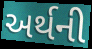
અર્થની